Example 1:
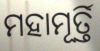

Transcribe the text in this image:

ମହାମୂର୍ତ୍ତି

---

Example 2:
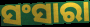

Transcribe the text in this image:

ସଂସାରା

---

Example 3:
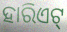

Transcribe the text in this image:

ହାରିଏଟ୍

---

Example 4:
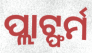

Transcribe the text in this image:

ପ୍ଲାଟ୍ଫର୍ମ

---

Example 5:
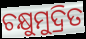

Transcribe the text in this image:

ଚକ୍ଷୁମୁଦ୍ରିତ